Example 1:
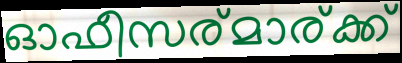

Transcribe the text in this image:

ഓഫീസര്മാര്ക്ക്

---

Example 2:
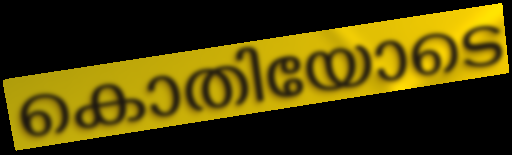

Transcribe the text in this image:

കൊതിയോടെ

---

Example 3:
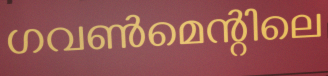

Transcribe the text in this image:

ഗവൺമെന്റിലെ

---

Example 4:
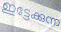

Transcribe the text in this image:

ഇട്ടേക്കുന്ന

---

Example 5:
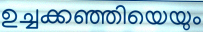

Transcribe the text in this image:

ഉച്ചക്കഞ്ഞിയെയും